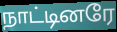
நாட்டினரே